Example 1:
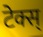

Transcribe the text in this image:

टेक्स्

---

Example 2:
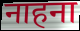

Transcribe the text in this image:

नाहना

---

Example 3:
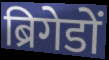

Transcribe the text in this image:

ब्रिगेडों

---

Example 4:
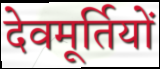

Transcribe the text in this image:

देवमूर्तियों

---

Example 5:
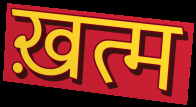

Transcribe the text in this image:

ख़त्‍म